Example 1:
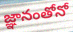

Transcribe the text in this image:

జ్ఞానంతోనో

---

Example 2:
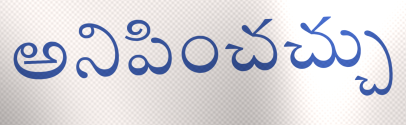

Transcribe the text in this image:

అనిపించచ్చు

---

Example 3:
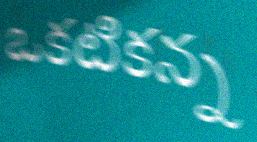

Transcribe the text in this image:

ఒకటికన్న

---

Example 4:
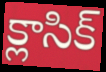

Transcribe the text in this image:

క్లాసిక్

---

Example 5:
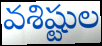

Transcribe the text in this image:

వశిష్టుల